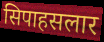
सिपाहसलार